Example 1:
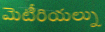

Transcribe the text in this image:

మెటీరియల్ను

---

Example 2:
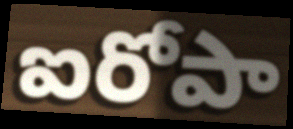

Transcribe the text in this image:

ఐరోపా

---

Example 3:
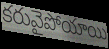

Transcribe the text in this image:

కరువైపోయాయి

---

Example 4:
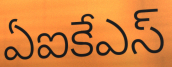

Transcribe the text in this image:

ఏఐకేఎస్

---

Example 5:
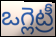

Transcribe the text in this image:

ఒగ్లెట్రీ